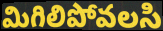
మిగిలిపోవలసి